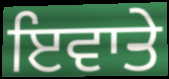
ਇਵਾਤੇ